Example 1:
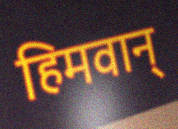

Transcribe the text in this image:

हिमवान्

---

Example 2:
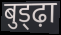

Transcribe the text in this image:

बुड्ढ़ा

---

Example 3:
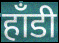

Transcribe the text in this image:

हाँडी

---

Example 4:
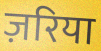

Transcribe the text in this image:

ज़रिया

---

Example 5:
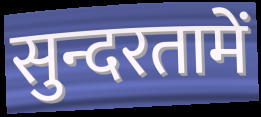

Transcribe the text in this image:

सुन्दरतामें